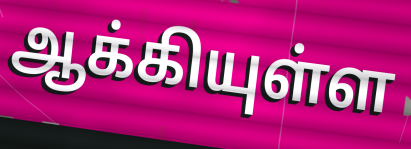
ஆக்கியுள்ள